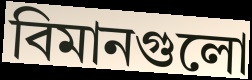
বিমানগুলো